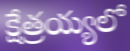
క్షేత్రయ్యలో